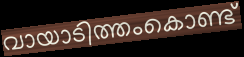
വായാടിത്തംകൊണ്ട്